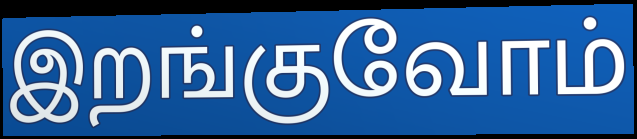
இறங்குவோம்